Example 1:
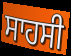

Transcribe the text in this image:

ਸਾਹਸੀ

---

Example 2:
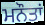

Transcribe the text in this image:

ਮਨੌਤਾਂ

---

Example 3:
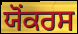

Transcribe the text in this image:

ਯੋੰਕਰਸ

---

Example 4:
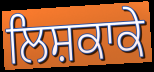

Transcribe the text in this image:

ਲਿਸ਼ਕਾਕੇ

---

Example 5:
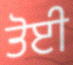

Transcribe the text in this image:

ਤੋਈ